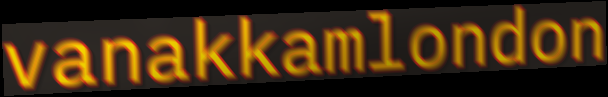
vanakkamlondon